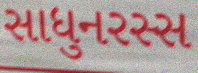
સાધુનરસ્સ